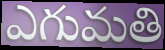
ఎగుమతి